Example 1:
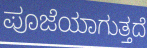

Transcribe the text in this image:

ಪೂಜೆಯಾಗುತ್ತದೆ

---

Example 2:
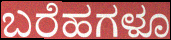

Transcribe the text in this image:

ಬರೆಹಗಳೂ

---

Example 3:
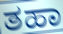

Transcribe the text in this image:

ತಹಾ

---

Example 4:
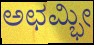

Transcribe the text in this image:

ಅಛಮ್ಭೀ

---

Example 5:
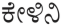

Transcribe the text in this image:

ಕೇಳಿನಿ